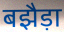
बझैड़ा